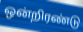
ஒன்றிரண்டு